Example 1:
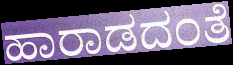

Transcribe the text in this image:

ಹಾರಾಡದಂತೆ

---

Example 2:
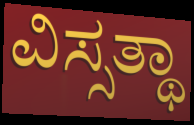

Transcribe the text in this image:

ವಿಸ್ಸತ್ಥಾ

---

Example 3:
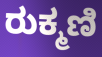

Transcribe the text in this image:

ರುಕ್ಮಣಿ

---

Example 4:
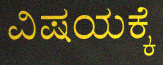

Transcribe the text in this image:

ವಿಷಯಕ್ಕೆ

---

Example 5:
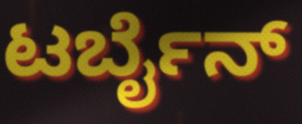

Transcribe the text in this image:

ಟರ್ಬೈನ್